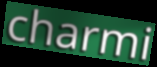
charmi